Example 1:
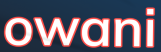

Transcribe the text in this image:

owani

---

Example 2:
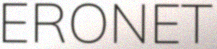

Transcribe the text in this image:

ERONET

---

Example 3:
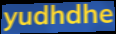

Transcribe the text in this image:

yudhdhe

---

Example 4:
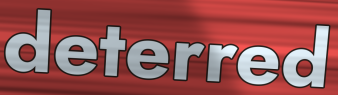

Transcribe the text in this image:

deterred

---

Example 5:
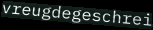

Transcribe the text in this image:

vreugdegeschrei